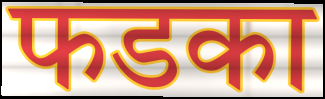
फडका